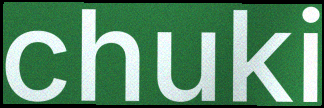
chuki